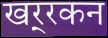
खर्रकन